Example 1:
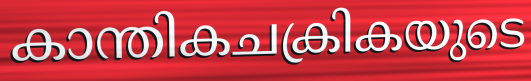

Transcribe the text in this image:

കാന്തികചക്രികയുടെ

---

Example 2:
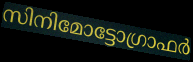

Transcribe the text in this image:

സിനിമോട്ടോഗ്രാഫർ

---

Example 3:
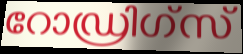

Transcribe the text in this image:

റോഡ്രിഗ്സ്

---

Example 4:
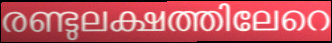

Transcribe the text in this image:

രണ്ടുലക്ഷത്തിലേറെ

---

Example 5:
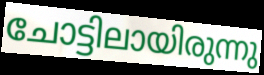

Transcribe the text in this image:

ചോട്ടിലായിരുന്നു